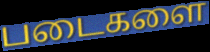
படைகளை